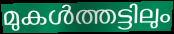
മുകൾത്തട്ടിലും